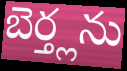
బెర్త్లను